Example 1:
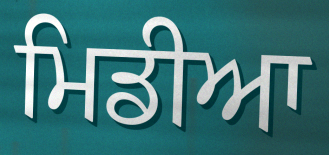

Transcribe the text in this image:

ਮਿਡੀਆ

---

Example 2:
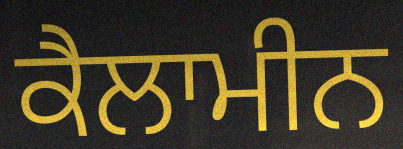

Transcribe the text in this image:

ਕੈਲਾਮੀਨ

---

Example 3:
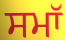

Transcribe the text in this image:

ਸਮਾੱ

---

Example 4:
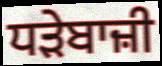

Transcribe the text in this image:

ਧੜੇਬਾਜ਼ੀ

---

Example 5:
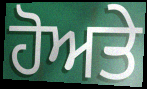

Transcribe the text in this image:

ਹੋਅਤੇ